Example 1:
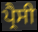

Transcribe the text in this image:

ਪ੍ਰੈਸੀ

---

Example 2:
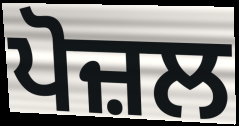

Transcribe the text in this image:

ਪੋਜ਼ਲ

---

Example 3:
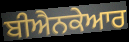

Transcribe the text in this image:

ਬੀਐਨਕੇਆਰ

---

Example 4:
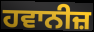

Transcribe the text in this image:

ਹਵਾਨੀਜ਼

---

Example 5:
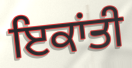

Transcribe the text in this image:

ਇਕਾਂਤੀ